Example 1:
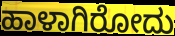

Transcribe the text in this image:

ಹಾಳಾಗಿರೋದು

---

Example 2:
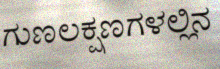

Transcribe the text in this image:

ಗುಣಲಕ್ಷಣಗಳಲ್ಲಿನ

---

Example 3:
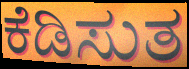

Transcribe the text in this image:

ಕೆಡಿಸುತ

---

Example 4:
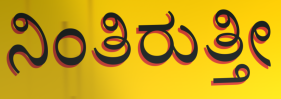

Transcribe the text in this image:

ನಿಂತಿರುತ್ತೀ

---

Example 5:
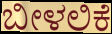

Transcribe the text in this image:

ಬೀಳಲಿಕೆ